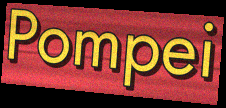
Pompei